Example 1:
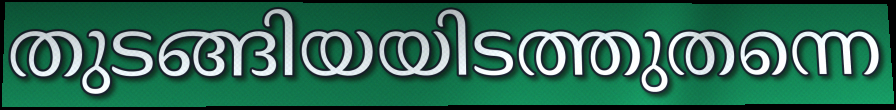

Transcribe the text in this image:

തുടങ്ങിയയിടത്തുതന്നെ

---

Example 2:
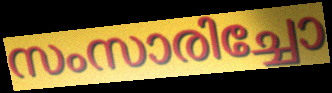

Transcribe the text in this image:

സംസാരിച്ചോ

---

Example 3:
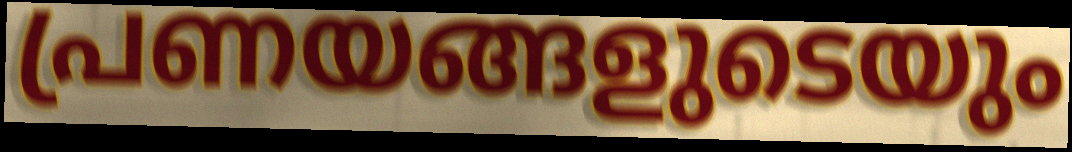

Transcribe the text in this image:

പ്രണയങ്ങളുടെയും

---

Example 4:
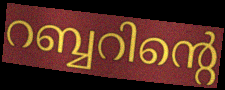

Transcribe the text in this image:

റബ്ബറിന്റെ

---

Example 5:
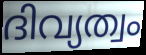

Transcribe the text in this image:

ദിവ്യത്വം